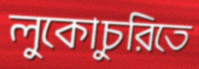
লুকোচুরিতে